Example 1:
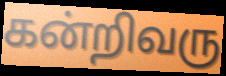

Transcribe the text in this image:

கன்றிவரு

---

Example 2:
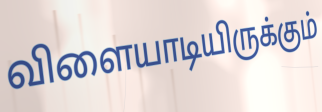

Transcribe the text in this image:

விளையாடியிருக்கும்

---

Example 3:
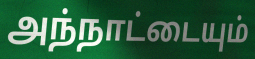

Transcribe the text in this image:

அந்நாட்டையும்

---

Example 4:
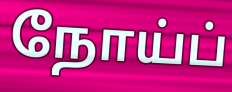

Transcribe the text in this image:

நோய்ப்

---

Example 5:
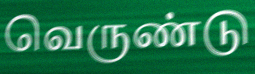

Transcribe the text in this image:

வெருண்டு